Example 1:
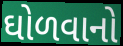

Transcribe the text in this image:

ઘોળવાનો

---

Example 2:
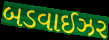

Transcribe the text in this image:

બડવાઈઝર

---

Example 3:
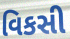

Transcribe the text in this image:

વિકસી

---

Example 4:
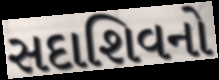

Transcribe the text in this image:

સદાશિવનો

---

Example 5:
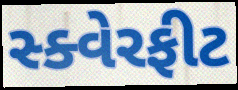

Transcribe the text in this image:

સ્ક્વેરફીટ